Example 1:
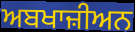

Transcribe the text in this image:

ਅਬਖਾਜ਼ੀਅਨ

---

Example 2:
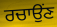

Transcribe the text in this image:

ਰਚਾਉਂਣ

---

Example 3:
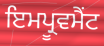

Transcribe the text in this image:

ਇਮਪ੍ਰੂਵਮੈਂਟ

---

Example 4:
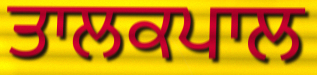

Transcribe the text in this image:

ਤਾਲਕਪਾਲ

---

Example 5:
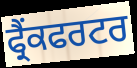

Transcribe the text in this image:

ਫ੍ਰੈਂਕਫਰਟਰ